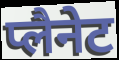
प्लैनेट